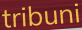
tribuni